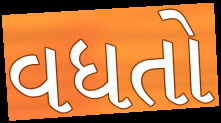
વધતો